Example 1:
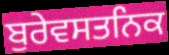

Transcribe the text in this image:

ਬੁਰੇਵਸਤਨਿਕ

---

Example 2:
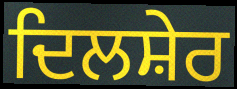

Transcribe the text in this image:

ਦਿਲਸ਼ੇਰ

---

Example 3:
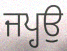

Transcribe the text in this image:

ਜਪ੍ਹਉ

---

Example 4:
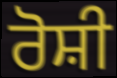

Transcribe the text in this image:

ਰੋਸ਼ੀ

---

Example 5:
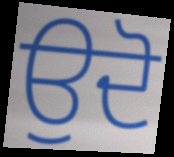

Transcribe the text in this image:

ਉਦੋ